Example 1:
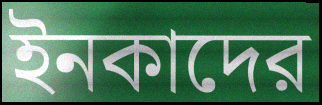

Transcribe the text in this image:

ইনকাদের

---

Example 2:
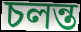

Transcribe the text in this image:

চলন্ত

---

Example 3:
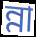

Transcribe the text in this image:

ন্না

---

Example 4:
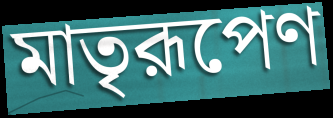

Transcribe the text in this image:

মাতৃরূপেণ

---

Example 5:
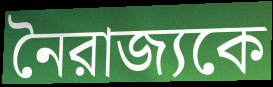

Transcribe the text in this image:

নৈরাজ্যকে